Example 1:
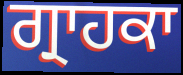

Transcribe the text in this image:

ਗ੍ਰਾਹਕਾ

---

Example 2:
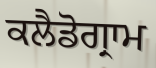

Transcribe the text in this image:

ਕਲੈਡੋਗ੍ਰਾਮ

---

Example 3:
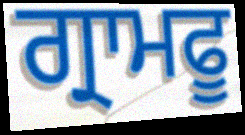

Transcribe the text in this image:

ਗ੍ਰਾਮਫੂ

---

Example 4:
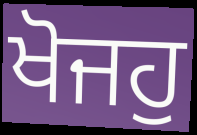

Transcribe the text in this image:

ਖੋਜਹੁ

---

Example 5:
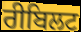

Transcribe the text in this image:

ਰੀਬਿਲਟ